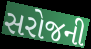
સરોજની